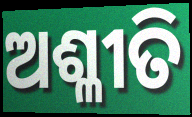
ଅଶ୍ଳୀତି